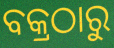
ବକ୍ରଠାରୁ